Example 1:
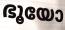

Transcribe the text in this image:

ഭൂയോ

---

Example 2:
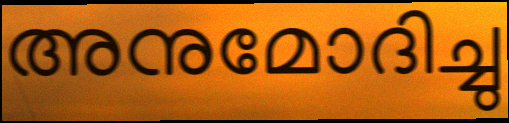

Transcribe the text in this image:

അനുമോദിച്ചു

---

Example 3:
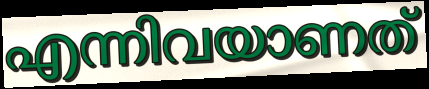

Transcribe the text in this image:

എന്നിവയാണത്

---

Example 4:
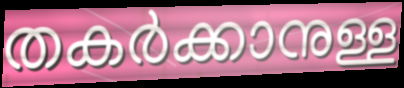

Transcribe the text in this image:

തകർക്കാനുള്ള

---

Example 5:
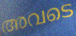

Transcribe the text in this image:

അവടെ